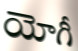
యోగీ